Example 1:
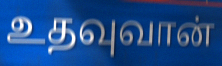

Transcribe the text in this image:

உதவுவான்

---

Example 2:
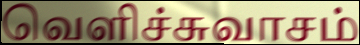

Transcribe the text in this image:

வெளிச்சுவாசம்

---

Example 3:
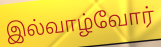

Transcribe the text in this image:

இல்வாழ்வோர்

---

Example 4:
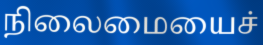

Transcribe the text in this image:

நிலைமையைச்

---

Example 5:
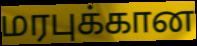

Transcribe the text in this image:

மரபுக்கான